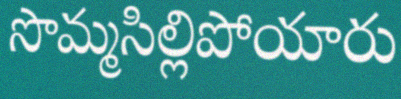
సొమ్మసిల్లిపోయారు